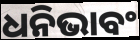
ଧନିଭାବଂ